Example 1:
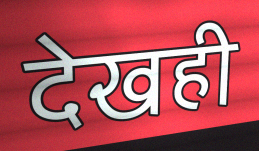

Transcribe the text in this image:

देखही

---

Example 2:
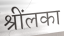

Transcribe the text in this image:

श्रींलका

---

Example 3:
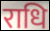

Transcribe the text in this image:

राधि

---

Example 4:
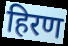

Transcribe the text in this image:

हिरण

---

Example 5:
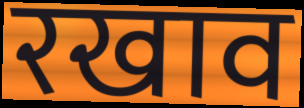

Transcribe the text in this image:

रखाव